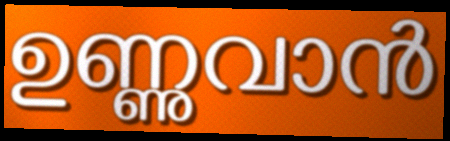
ഉണ്ണുവാൻ